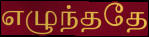
எழுந்ததே